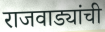
राजवाड्यांची